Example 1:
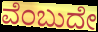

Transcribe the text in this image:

ವೆಂಬುದೇ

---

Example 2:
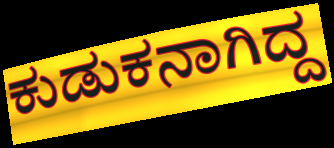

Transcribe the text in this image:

ಕುಡುಕನಾಗಿದ್ದ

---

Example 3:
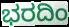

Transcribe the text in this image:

ಭರದಿಂ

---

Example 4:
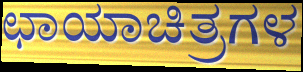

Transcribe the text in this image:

ಛಾಯಾಚಿತ್ರಗಳ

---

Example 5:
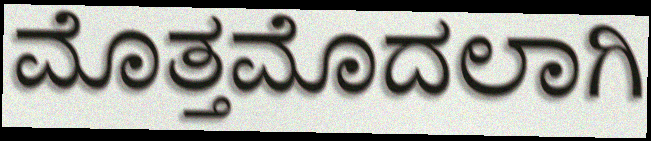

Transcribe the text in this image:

ಮೊತ್ತಮೊದಲಾಗಿ